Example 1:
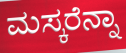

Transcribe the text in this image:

ಮಸ್ಕರೆನ್ನಾ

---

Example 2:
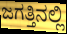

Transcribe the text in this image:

ಜಗತ್ತಿನಲ್ಲಿ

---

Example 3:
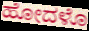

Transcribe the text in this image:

ಹೋದಳೊ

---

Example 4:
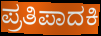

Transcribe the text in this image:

ಪ್ರತಿಪಾದಕಿ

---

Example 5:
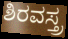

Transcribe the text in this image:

ಶಿರವಸ್ತ್ರ